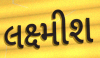
લક્ષ્મીશ